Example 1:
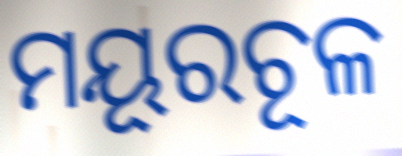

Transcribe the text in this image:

ମୟୂରଚୂଳ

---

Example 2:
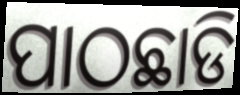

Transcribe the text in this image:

ପାଠଛାଡି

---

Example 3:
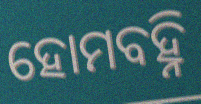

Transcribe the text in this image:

ହୋମବହ୍ନି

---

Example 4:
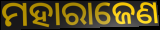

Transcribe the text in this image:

ମହାରାଜେଣ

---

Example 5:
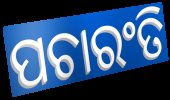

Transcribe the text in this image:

ପଚାରଂତି